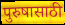
पुरुषासाठी